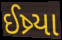
ઈષ્ર્યા